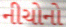
નીચોનો